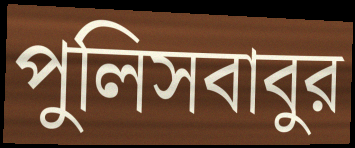
পুলিসবাবুর